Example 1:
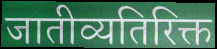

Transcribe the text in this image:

जातीव्यतिरिक्त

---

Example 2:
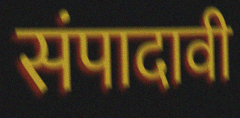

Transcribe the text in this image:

संपादावी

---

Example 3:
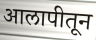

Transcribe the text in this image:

आलापीतून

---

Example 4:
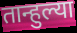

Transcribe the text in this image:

तान्हुल्या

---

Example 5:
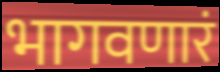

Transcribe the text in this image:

भागवणारं